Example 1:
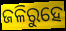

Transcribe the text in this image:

ଜଳିରୁହେ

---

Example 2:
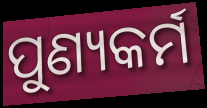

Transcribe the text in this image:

ପୁଣ୍ୟକର୍ମ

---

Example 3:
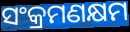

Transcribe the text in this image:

ସଂକ୍ରମଣକ୍ଷମ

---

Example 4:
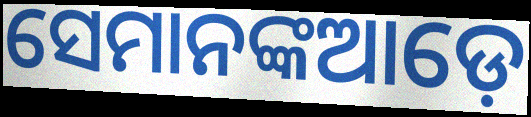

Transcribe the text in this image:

ସେମାନଙ୍କଆଡ଼େ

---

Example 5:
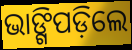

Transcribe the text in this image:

ଭାଙ୍ଗିପଡ଼ିଲେ